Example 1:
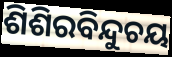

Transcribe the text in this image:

ଶିଶିରବିନ୍ଦୁଚୟ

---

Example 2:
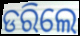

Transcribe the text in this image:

ଡରିଲେ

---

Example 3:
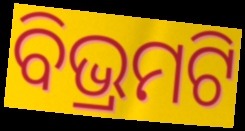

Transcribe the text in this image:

ବିଭ୍ରମଟି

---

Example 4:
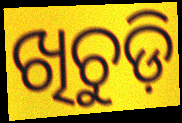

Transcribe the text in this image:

ଖିଚୁଡ଼ି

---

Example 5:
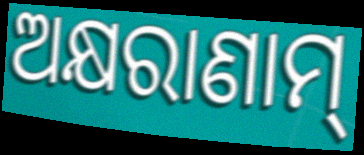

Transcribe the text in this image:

ଅକ୍ଷରାଣାମ୍